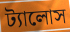
ট্যালোস